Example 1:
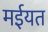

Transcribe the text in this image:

मईयत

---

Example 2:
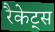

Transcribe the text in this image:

रैकेट्स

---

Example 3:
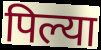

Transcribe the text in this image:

पिल्या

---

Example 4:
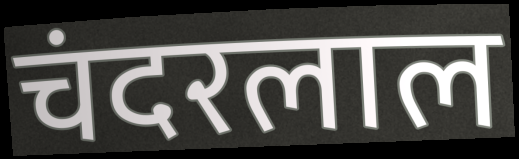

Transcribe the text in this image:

चंदरलाल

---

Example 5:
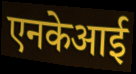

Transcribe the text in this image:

एनकेआई